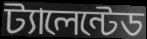
ট্যালেন্টেড